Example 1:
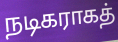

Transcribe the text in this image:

நடிகராகத்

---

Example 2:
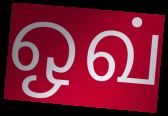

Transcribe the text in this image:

ஒவ்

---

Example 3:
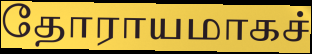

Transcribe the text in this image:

தோராயமாகச்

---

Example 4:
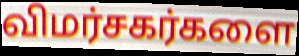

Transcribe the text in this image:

விமர்சகர்களை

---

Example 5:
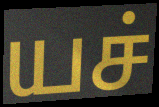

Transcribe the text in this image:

யச்